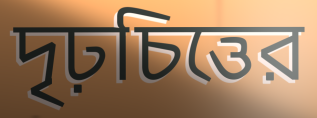
দৃঢ়চিত্তের